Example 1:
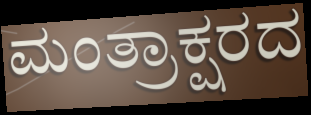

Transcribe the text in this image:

ಮಂತ್ರಾಕ್ಷರದ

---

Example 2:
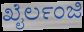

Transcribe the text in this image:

ಖೈರ್ಲಂಜಿ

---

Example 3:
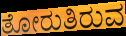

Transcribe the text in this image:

ತೋರುತಿರುವ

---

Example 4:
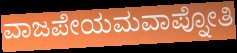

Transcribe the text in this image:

ವಾಜಪೇಯಮವಾಪ್ನೋತಿ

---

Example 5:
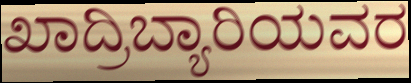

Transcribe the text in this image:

ಖಾದ್ರಿಬ್ಯಾರಿಯವರ